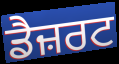
ਡੈਜ਼ਰਟ